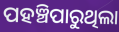
ପହଞ୍ଚିପାରୁଥିଲା